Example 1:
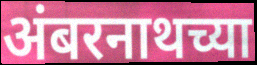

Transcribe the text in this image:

अंबरनाथच्या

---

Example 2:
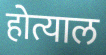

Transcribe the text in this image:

होत्याल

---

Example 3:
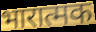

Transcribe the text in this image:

भारात्मक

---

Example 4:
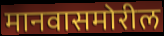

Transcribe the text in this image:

मानवासमोरील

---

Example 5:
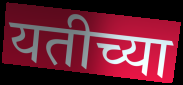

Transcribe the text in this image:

यतीच्या